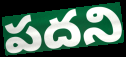
పదని